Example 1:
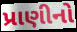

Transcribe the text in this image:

પ્રાણીનો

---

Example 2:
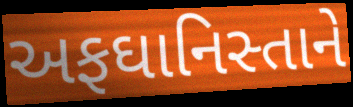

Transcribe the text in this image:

અફઘાનિસ્તાને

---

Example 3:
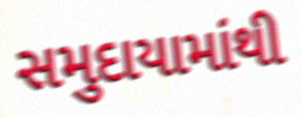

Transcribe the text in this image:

સમુદાયામાંથી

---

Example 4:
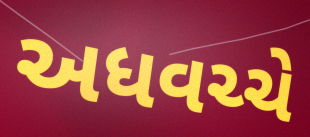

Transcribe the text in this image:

અધવચ્ચે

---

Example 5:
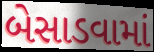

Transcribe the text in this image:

બેસાડવામાં